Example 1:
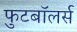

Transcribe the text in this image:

फुटबॉलर्स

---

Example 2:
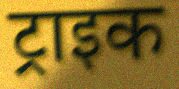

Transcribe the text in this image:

ट्राइक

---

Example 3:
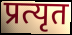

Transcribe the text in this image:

प्रत्यृत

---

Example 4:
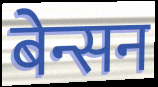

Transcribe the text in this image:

बेन्सन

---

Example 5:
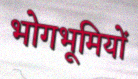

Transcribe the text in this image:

भोगभूमियों